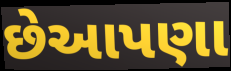
છેઆપણા